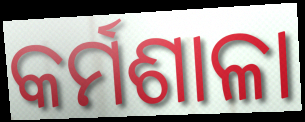
କର୍ମଶାଳା